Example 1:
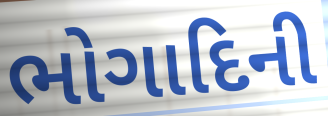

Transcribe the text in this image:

ભોગાદિની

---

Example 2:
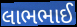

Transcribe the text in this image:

લાભભાઈ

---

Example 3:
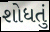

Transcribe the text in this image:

શોધતું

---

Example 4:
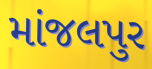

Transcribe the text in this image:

માંજલપુર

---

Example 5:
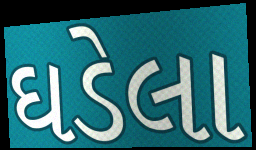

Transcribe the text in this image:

ઘડેલા